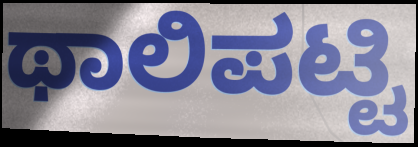
ಥಾಲಿಪಟ್ಟಿ